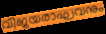
വിജയരാഘവനും